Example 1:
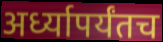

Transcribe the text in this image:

अर्ध्यापर्यंतच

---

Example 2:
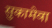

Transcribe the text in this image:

सुकामेवा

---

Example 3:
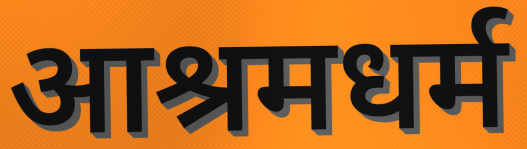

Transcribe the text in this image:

आश्रमधर्म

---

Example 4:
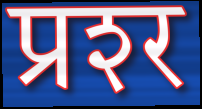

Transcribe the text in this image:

प्रश्र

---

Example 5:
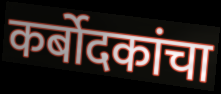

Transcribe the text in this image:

कर्बोदकांचा